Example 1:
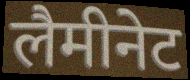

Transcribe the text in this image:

लैमीनेट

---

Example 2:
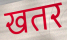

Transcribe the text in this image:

खतर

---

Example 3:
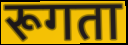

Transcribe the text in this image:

रूगता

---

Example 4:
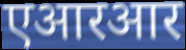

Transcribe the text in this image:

एआरआर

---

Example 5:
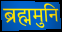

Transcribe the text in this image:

ब्रह्ममुनि